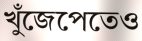
খুঁজেপেতেও